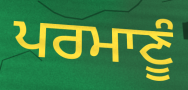
ਪਰਮਾਣੂੰ